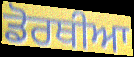
ਡੋਰਥੀਆ